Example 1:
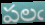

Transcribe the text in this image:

పలఁ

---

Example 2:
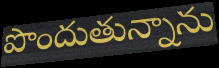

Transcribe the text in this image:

పొందుతున్నాను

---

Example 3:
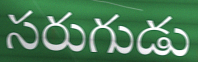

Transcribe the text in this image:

సరుగుడు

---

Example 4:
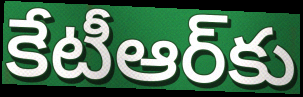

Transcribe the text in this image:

కేటీఆర్‌కు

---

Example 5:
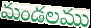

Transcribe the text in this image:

మండలము